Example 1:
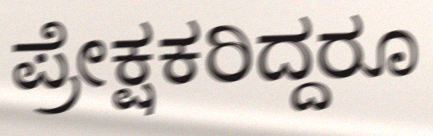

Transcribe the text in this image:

ಪ್ರೇಕ್ಷಕರಿದ್ದರೂ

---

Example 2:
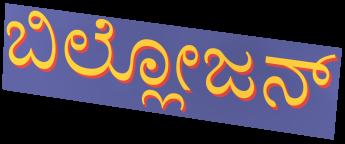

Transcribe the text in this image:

ಬಿಲ್ಲೋಜನ್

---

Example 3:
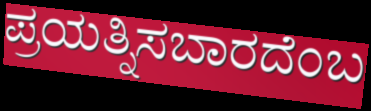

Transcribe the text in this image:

ಪ್ರಯತ್ನಿಸಬಾರದೆಂಬ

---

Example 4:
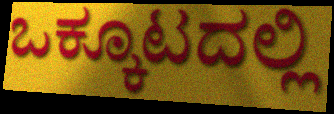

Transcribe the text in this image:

ಒಕ್ಕೂಟದಲ್ಲಿ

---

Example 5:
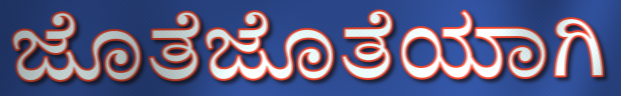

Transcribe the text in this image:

ಜೊತೆಜೊತೆಯಾಗಿ